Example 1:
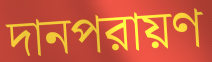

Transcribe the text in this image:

দানপরায়ণ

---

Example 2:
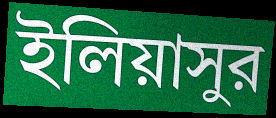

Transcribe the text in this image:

ইলিয়াসুর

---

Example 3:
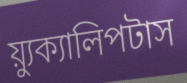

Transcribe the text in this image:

য়্যুক্যালিপটাস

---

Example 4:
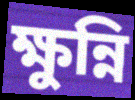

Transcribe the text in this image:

ক্ষুন্নি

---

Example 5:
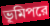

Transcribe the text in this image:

ভূমিপরে